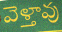
వెళ్తావు